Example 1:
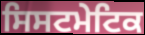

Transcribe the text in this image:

ਸਿਸਟਮੇਟਿਕ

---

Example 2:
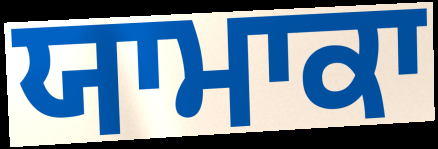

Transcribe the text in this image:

ਯਾਮਾਕਾ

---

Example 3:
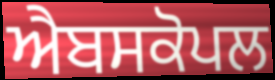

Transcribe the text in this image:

ਐਬਸਕੋਪਲ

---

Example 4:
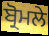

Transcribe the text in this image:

ਬ੍ਰੋਮਲੇ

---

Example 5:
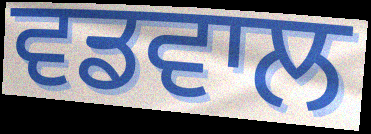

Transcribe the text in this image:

ਵਡਵਾਲ